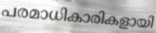
പരമാധികാരികളായി